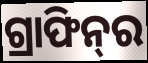
ଗ୍ରାଫିନ୍‌ର